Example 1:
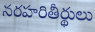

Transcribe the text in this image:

నరహరితీర్థులు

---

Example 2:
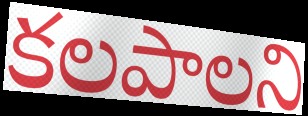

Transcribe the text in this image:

కలపాలని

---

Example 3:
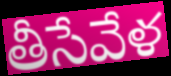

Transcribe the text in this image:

తీసేవేళ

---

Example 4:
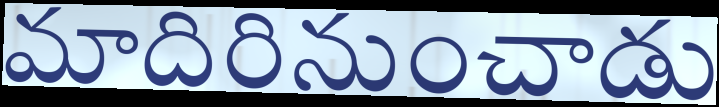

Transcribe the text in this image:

మాదిరినుంచాడు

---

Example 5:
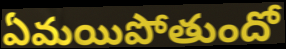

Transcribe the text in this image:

ఏమయిపోతుందో